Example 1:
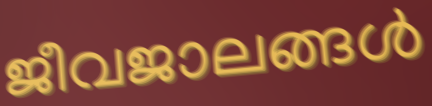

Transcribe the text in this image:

ജീവജാലങ്ങൾ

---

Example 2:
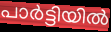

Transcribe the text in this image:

പാർട്ടിയിൽ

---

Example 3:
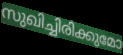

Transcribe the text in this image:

സുഖിച്ചിരിക്കുമോ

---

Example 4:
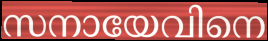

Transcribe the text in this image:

സനായേവിനെ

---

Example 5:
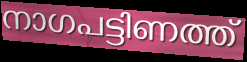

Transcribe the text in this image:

നാഗപട്ടിണത്ത്